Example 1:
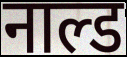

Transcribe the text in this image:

नाल्ड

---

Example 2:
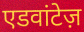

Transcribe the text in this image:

एडवांटेज़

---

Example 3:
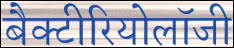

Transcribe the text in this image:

बैक्टीरियोलॉजी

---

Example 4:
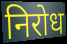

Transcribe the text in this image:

निरोध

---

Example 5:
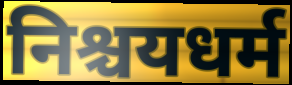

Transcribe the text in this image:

निश्चयधर्म